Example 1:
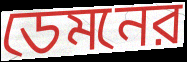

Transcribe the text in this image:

ডেমনের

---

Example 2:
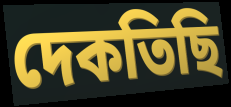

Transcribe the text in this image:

দেকতিছি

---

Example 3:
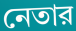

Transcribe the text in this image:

নেতার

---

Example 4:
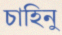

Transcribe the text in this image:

চাহিনু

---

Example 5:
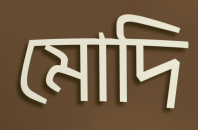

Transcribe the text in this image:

মোদি